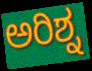
ಅರಿಶ್ನ